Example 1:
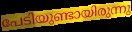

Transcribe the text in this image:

പേടിയുണ്ടായിരുന്നു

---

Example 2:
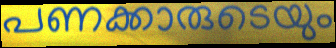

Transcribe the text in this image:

പണക്കാരുടെയും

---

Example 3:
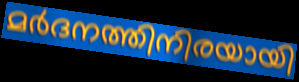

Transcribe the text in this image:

മർദനത്തിനിരയായി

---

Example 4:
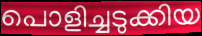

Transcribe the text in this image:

പൊളിച്ചടുക്കിയ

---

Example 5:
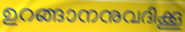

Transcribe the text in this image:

ഉറങ്ങാനനുവദിക്കൂ